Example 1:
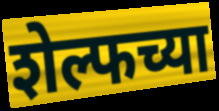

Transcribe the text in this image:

शेल्फच्या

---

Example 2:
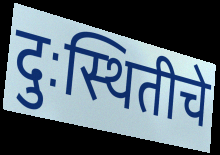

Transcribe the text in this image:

दुःस्थितीचे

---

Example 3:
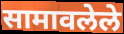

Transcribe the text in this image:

सामावलेले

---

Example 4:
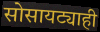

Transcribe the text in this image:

सोसायट्याही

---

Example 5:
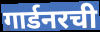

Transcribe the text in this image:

गार्डनरची